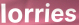
lorries